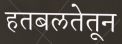
हतबलतेतून